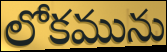
లోకమును